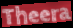
Theera